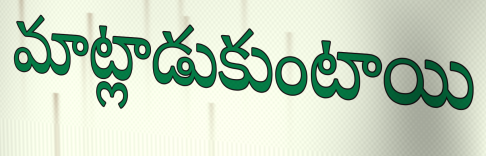
మాట్లాడుకుంటాయి